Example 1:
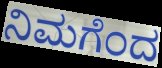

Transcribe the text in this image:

ನಿಮಗೆಂದ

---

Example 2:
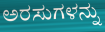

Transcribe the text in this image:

ಅರಸುಗಳನ್ನು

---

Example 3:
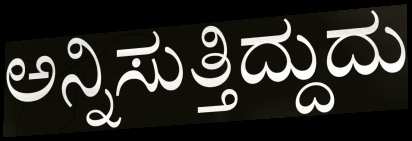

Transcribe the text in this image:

ಅನ್ನಿಸುತ್ತಿದ್ದುದು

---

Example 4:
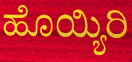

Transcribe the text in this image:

ಹೊಯ್ಯಿರಿ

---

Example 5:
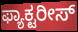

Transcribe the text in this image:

ಫ್ಯಾಕ್ಟರೀಸ್